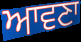
ਆਵਣਾ